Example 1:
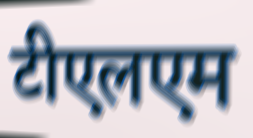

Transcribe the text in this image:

टीएलएम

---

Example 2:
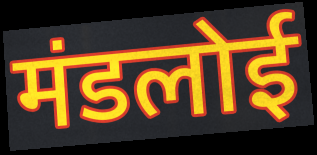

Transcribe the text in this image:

मंडलोई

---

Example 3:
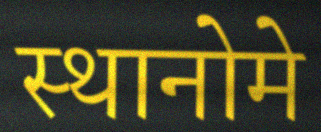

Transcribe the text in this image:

स्थानोमे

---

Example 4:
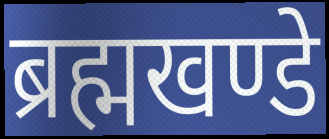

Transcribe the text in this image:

ब्रह्मखण्डे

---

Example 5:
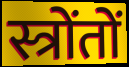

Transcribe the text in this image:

स्त्रोंतों